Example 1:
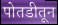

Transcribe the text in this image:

पोतडीतून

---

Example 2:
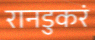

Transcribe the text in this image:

रानडुकरं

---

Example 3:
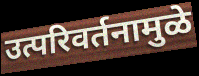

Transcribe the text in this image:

उत्परिवर्तनामुळे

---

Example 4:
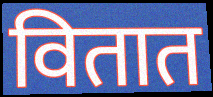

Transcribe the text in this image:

वितात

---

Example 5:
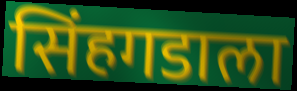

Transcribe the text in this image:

सिंहगडाला